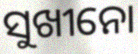
ସୁଖୀନୋ